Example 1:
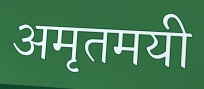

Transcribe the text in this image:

अमृतमयी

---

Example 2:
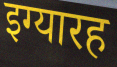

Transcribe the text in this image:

इग्यारह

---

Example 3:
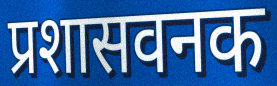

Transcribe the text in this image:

प्रशासवनक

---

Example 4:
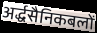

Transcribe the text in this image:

अर्द्धसैनिकबलों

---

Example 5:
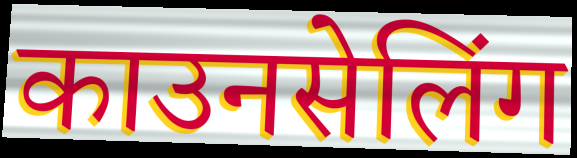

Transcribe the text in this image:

काउनसेलिंग